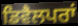
ਡਿਵੈਲਪਰਾਂ